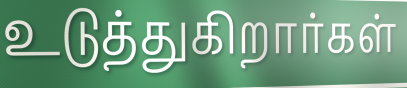
உடுத்துகிறார்கள்